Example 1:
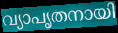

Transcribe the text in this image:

വ്യാപൃതനായി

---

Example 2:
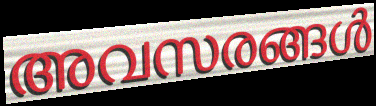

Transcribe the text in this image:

അവസരങ്ങൾ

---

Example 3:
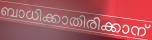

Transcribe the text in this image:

ബാധിക്കാതിരിക്കാന്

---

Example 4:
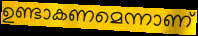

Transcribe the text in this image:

ഉണ്ടാകണമെന്നാണ്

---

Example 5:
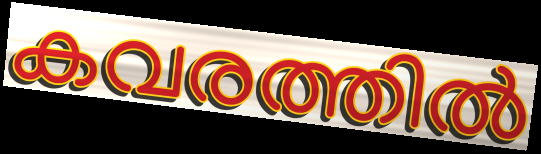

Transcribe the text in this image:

കവരത്തിൽ